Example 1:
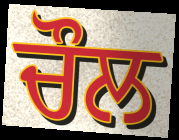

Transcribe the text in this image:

ਚੌਲ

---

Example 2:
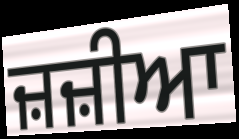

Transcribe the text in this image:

ਜ਼ਜ਼ੀਆ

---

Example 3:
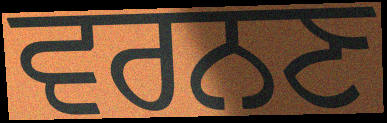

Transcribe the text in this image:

ਵਰਨਣ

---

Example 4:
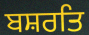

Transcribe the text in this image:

ਬਸ਼ਰਤਿ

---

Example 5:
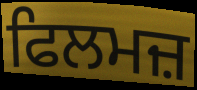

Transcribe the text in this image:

ਫਿਲਮਜ਼